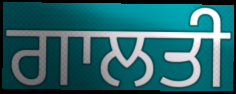
ਗਾਲਤੀ